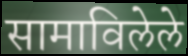
सामाविलेले